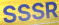
SSSR